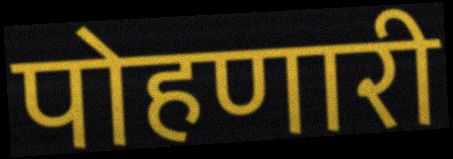
पोहणारी